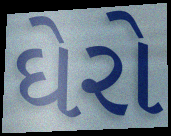
ઘેરો